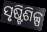
ସୃଷ୍ଟିଶିଳ୍ପ